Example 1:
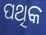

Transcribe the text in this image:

ପଥିକ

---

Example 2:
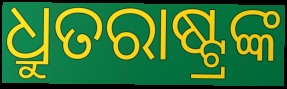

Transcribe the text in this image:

ଧ୍ରୁତରାଷ୍ଟ୍ରଙ୍କ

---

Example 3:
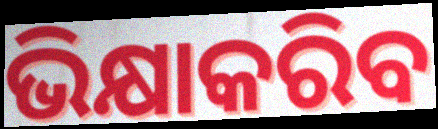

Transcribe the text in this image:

ଭିକ୍ଷାକରିବ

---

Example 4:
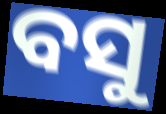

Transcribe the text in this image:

ବସୁ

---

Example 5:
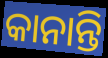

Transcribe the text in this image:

କାନାନ୍ତି